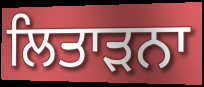
ਲਿਤਾੜਨਾ